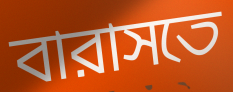
বারাসতে